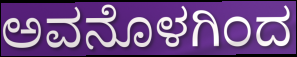
ಅವನೊಳಗಿಂದ